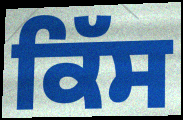
ਕਿੱਸ